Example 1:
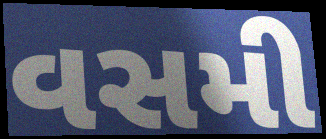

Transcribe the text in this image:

વસમી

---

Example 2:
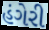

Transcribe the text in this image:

હંગેરી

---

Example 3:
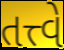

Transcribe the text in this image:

તત્ત્વે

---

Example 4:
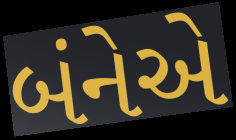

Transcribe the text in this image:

બંનેએ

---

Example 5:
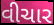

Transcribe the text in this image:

વીચાર